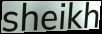
sheikh